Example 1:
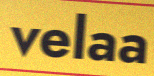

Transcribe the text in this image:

velaa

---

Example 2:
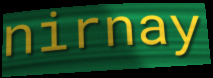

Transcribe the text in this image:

nirnay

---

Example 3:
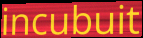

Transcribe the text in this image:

incubuit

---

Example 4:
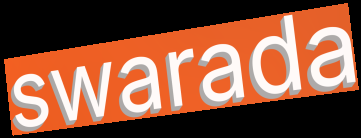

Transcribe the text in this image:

swarada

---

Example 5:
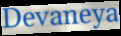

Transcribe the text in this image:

Devaneya